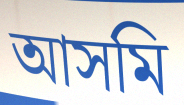
আসমি